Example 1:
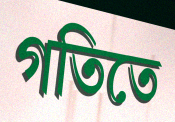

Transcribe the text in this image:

গতিতে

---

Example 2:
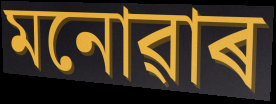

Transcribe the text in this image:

মনোৱাৰ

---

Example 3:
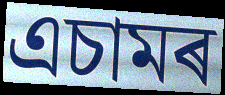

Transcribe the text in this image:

এচামৰ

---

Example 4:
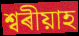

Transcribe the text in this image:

শ্বৰীয়াহ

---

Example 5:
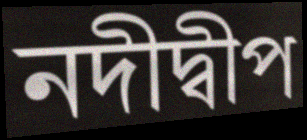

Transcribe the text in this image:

নদীদ্বীপ